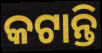
କଟାନ୍ତି